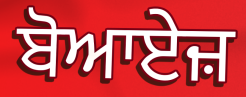
ਬੋਆਏਜ਼